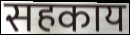
सहकाय